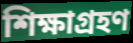
শিক্ষাগ্ৰহণ